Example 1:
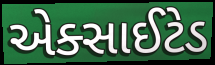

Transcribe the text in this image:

એક્સાઈટેડ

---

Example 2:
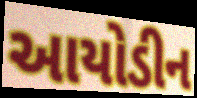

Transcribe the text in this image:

આયોડીન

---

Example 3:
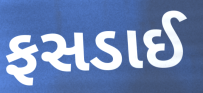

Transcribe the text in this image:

ફસડાઈ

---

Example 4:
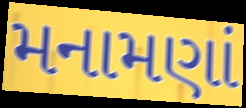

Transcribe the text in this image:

મનામણાં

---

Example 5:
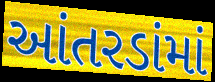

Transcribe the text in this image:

આંતરડાંમાં